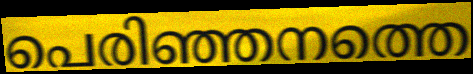
പെരിഞ്ഞനത്തെ